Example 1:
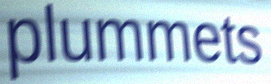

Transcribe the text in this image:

plummets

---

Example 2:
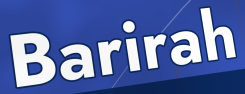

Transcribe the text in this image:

Barirah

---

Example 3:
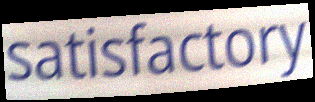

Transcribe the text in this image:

satisfactory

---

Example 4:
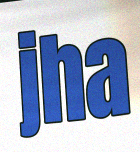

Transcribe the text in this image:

jha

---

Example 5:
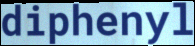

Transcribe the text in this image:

diphenyl